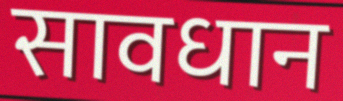
सावधान